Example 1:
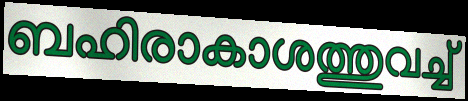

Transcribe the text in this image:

ബഹിരാകാശത്തുവച്ച്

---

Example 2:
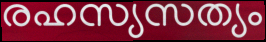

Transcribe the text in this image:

രഹസ്യസത്യം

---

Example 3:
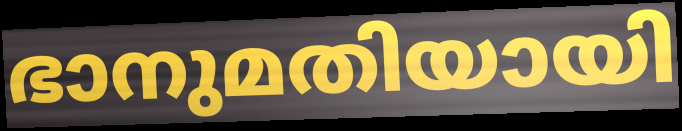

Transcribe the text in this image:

ഭാനുമതിയായി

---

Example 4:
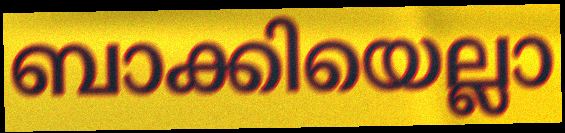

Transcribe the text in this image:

ബാക്കിയെല്ലാ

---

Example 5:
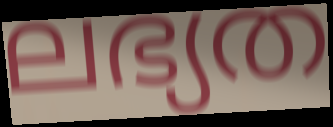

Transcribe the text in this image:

ലഭ്യത